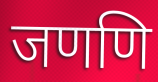
जणणि